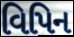
વિપિન